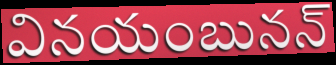
వినయంబునన్